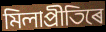
মিলাপ্ৰীতিৰে